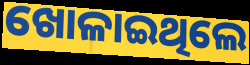
ଖୋଳାଇଥିଲେ